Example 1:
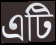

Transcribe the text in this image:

এটি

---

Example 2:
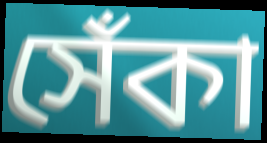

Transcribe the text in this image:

সেঁকা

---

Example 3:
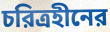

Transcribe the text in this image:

চরিত্রহীনের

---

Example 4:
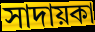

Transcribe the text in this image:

সাদায়কা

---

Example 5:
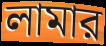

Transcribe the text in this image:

লামার